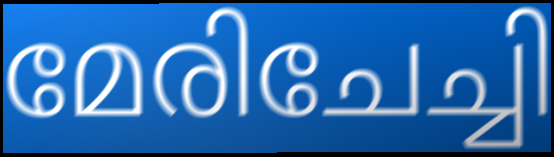
മേരിചേച്ചി